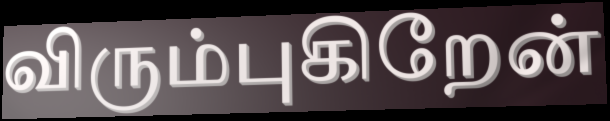
விரும்புகிறேன்